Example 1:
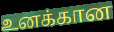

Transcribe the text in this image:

உனக்கான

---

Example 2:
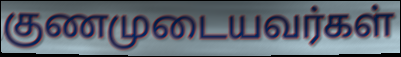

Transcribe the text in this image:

குணமுடையவர்கள்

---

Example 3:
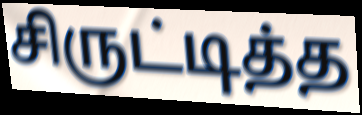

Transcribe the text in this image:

சிருட்டித்த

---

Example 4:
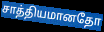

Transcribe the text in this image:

சாத்தியமானதோ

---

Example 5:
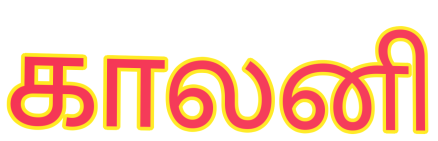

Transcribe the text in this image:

காலனி